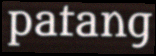
patang